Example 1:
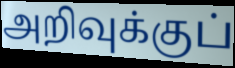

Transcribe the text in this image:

அறிவுக்குப்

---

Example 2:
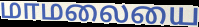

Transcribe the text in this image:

மாமலையை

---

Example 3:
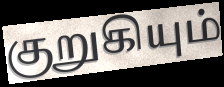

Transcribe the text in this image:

குறுகியும்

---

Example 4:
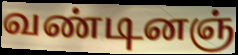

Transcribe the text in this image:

வண்டினஞ்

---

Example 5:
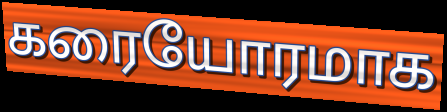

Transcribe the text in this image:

கரையோரமாக